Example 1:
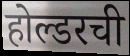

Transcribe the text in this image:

होल्डरची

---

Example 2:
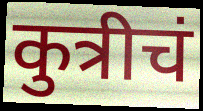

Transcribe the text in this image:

कुत्रीचं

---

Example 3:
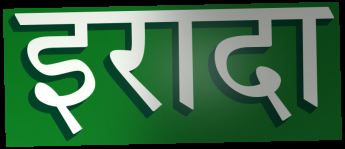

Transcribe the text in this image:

इरादा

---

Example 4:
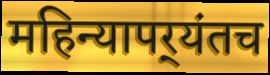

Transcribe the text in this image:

महिन्यापर्यंतच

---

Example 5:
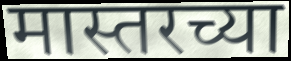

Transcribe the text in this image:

मास्तरच्या